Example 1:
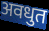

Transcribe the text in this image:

अवधुत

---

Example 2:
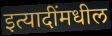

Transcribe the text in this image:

इत्यादींमधील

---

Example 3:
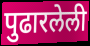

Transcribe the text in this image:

पुढारलेली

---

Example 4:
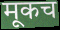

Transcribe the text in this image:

मूकच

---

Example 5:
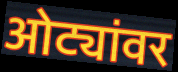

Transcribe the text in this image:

ओट्यांवर